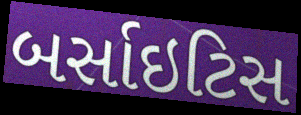
બર્સાઇટિસ